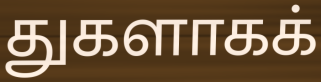
துகளாகக்